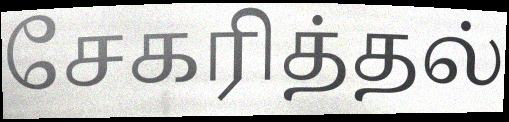
சேகரித்தல்